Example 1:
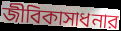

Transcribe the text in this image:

জীবিকাসাধনার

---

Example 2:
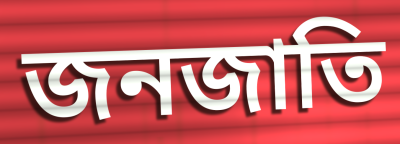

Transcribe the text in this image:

জনজাতি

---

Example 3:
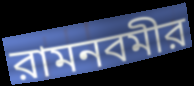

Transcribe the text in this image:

রামনবমীর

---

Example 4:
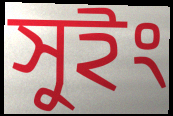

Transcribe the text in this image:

সুইং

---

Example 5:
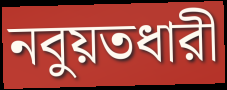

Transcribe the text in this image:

নবুয়তধারী